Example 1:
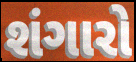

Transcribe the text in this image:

શંગારો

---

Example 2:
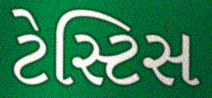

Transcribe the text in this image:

ટેસ્ટિસ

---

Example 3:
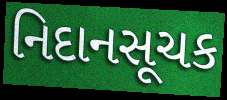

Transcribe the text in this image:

નિદાનસૂચક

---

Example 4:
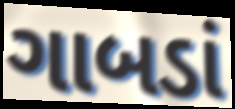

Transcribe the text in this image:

ગાબડાં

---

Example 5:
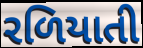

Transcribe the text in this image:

રળિયાતી